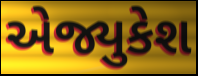
એજ્યુકેશ